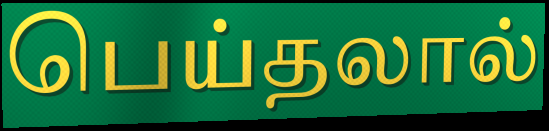
பெய்தலால்